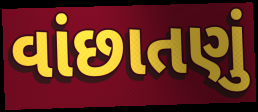
વાંછાતણું